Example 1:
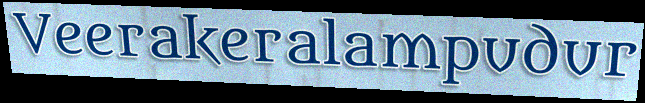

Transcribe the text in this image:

Veerakeralampudur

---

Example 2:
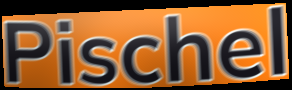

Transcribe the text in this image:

Pischel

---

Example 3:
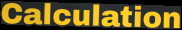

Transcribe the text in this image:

Calculation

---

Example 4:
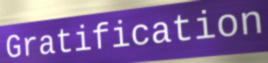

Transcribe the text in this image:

Gratification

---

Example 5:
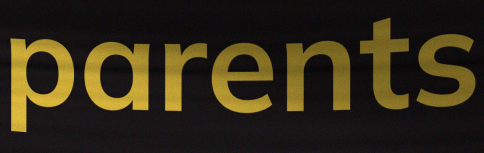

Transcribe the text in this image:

parents